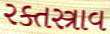
રક્તસ્ત્રાવ